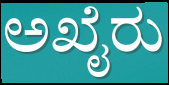
ಅಖೈರು